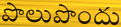
పొలుపొందు